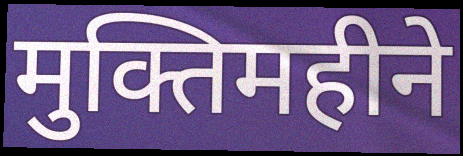
मुक्तिमहीने